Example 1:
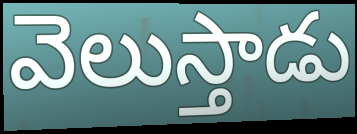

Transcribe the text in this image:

వెలుస్తాడు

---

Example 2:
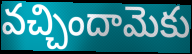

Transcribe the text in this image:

వచ్చిందామెకు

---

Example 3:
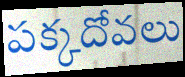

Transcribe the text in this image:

పక్కదోవలు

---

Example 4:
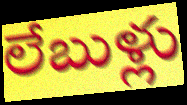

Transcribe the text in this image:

లేబుళ్లు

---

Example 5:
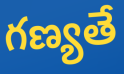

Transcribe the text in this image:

గణ్యతే